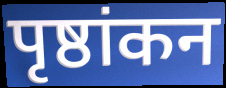
पृष्ठांकन